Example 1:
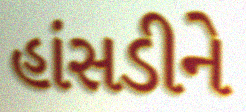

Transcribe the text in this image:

હાંસડીને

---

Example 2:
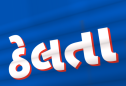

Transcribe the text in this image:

ઠેલતા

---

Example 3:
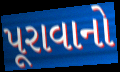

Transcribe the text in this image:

પૂરાવાનો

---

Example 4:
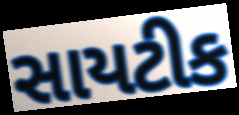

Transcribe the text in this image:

સાયટીક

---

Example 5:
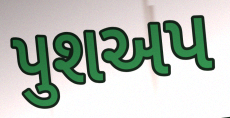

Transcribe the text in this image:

પુશઅપ